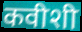
कवीशी